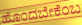
ಹೊಂದಬೇಕೆಂಬ